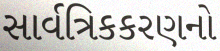
સાર્વત્રિકકરણનો